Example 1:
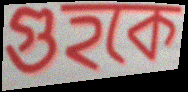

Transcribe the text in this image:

গুহকে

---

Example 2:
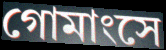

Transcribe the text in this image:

গোমাংসে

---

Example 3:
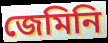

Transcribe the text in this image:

জেমিনি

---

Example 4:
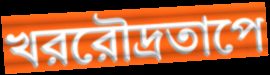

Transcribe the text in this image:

খররৌদ্রতাপে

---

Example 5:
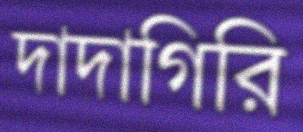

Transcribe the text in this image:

দাদাগিরি